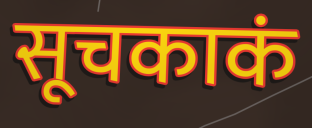
सूचकाकं